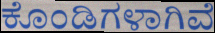
ಕೊಂಡಿಗಳಾಗಿವೆ